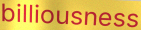
billiousness